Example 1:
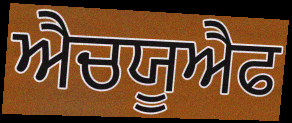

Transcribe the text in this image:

ਐਚਯੂਐਫ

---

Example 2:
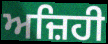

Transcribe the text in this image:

ਅਜ਼ਿਹੀ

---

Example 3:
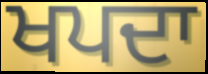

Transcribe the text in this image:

ਖਪਦਾ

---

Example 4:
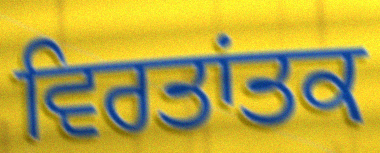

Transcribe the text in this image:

ਵਿਰਤਾਂਤਕ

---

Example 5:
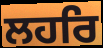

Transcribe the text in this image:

ਲਹਰਿ